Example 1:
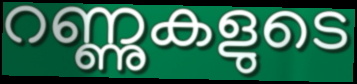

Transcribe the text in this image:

റണ്ണുകളുടെ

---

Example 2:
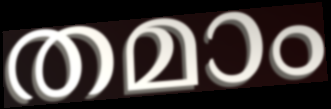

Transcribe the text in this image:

തമാം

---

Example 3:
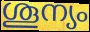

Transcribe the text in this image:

ശൂന്യം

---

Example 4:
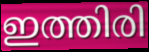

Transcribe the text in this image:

ഇത്തിരി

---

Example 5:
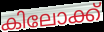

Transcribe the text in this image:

കിലോക്ക്